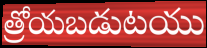
త్రోయబడుటయు